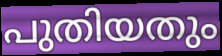
പുതിയതും